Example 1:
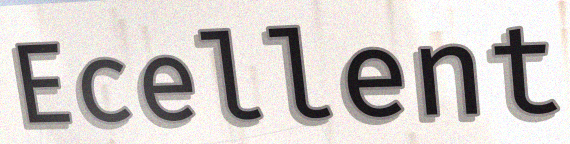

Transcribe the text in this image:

Ecellent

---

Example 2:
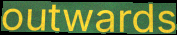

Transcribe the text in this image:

outwards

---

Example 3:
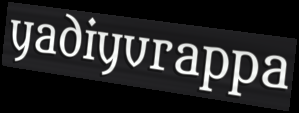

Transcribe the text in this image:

yadiyurappa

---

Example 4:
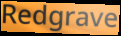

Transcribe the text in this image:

Redgrave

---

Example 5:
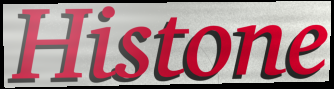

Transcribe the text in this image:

Histone